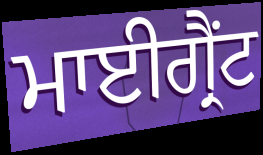
ਮਾਈਗ੍ਰੈਂਟ